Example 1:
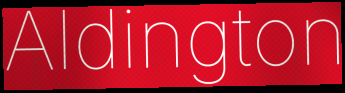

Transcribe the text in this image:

Aldington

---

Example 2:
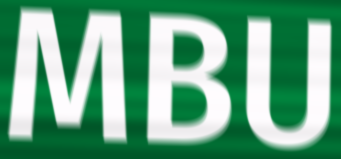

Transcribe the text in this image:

MBU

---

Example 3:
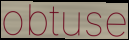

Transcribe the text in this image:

obtuse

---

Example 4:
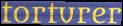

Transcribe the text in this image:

torturer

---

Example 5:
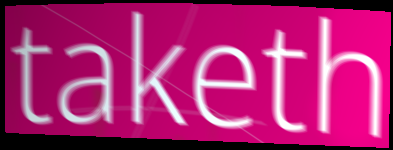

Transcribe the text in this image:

taketh